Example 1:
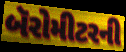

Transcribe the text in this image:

બૅરોમીટરની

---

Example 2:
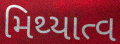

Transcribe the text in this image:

મિથ્યાત્વ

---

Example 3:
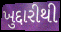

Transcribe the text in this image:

ખુદ્દારીથી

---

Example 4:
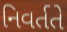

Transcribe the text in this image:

નિવર્તતે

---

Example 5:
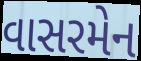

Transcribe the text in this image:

વાસરમેન